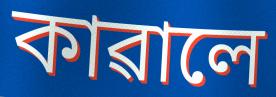
কাৱালে